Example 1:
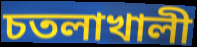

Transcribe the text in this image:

চতলাখালী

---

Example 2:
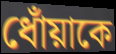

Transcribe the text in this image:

ধোঁয়াকে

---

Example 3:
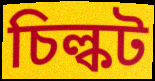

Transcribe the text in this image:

চিল্কট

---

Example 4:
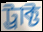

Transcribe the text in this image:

ট্রাক্ট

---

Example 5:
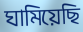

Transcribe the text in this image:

ঘামিয়েছি